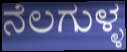
ನೆಲಗುಳ್ಳ